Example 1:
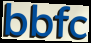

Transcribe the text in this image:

bbfc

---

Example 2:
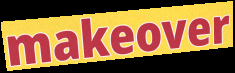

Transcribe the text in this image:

makeover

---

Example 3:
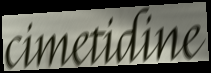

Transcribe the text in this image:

cimetidine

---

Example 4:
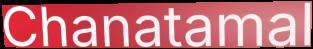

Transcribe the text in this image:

Chanatamal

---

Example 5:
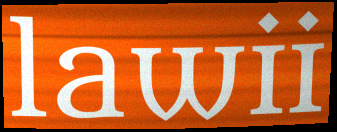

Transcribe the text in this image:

lawii